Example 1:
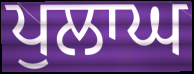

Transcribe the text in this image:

ਪੁਲਾਘ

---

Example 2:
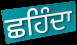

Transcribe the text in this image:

ਛਹਿੰਦਾ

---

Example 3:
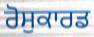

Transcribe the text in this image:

ਰੋਸੁਕਾਰਡ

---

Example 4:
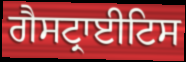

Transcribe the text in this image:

ਗੈਸਟ੍ਰਾਈਟਿਸ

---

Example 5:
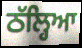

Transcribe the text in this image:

ਠੱਲ੍ਹਿਆ